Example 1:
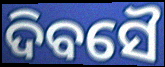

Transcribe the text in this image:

ଦିବସୈ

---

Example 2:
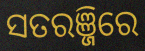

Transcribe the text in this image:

ସତରଞ୍ଜିରେ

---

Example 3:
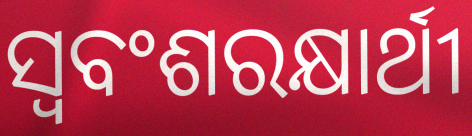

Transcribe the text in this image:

ସ୍ବବଂଶରକ୍ଷାର୍ଥୀ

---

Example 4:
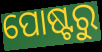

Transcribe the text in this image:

ପୋଷ୍ଟରୁ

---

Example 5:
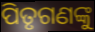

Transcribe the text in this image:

ପିତୃଗଣଙ୍କୁ